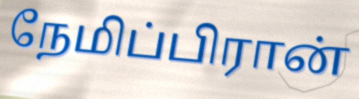
நேமிப்பிரான்